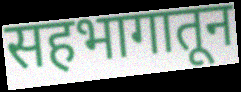
सहभागातून